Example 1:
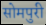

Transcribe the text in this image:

सोमपुरी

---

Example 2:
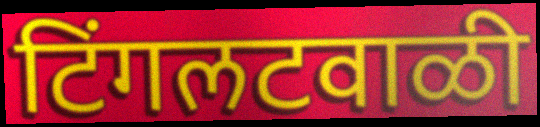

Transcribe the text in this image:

टिंगलटवाळी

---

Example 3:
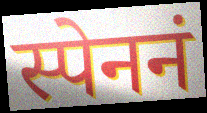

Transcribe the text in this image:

स्पेननं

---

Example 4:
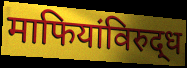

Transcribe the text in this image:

माफियांविरुद्ध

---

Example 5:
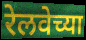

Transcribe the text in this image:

रेलवेच्या